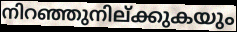
നിറഞ്ഞുനില്ക്കുകയും